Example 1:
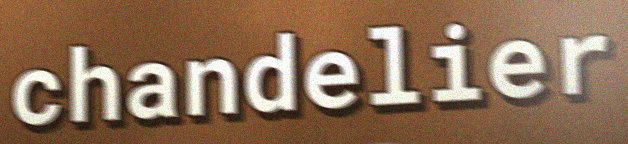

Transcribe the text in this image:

chandelier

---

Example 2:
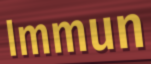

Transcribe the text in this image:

Immun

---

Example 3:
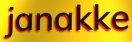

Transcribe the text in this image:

janakke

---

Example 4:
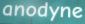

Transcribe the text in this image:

anodyne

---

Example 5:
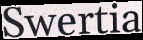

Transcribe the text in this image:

Swertia